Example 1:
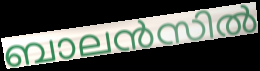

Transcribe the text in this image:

ബാലൻസിൽ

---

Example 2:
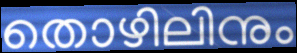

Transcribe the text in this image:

തൊഴിലിനും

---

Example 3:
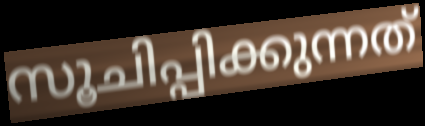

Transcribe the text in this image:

സൂചിപ്പിക്കുന്നത്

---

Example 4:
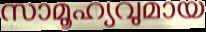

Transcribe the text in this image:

സാമൂഹ്യവുമായ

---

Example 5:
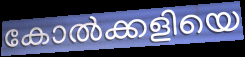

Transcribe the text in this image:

കോൽക്കളിയെ